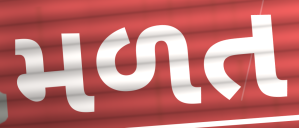
મળત